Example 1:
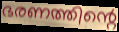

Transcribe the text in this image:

ഭരണത്തിന്റെ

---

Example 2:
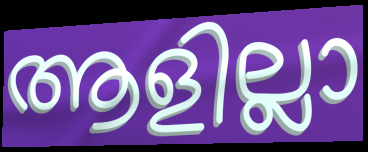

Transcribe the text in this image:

ആളില്ലാ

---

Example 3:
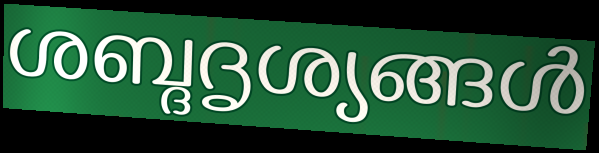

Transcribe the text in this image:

ശബ്ദദൃശ്യങ്ങൾ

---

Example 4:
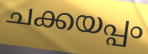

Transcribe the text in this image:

ചക്കയപ്പം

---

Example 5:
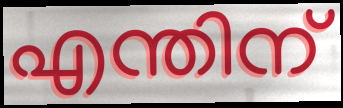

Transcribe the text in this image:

എന്തിന്